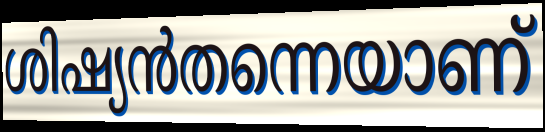
ശിഷ്യൻതന്നെയാണ്